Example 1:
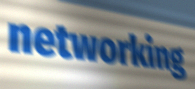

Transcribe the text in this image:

networking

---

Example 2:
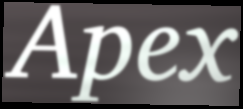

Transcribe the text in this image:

Apex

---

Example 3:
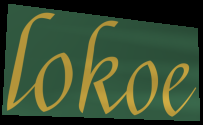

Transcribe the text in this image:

lokoe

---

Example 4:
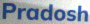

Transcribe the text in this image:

Pradosh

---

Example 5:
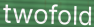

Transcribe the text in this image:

twofold